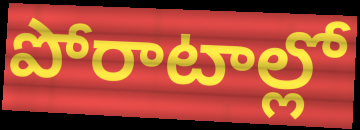
పోరాటాల్లో